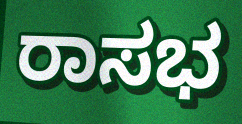
ರಾಸಭ